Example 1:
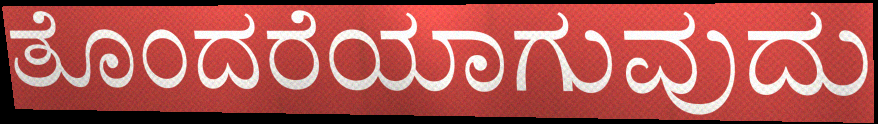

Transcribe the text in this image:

ತೊಂದರೆಯಾಗುವುದು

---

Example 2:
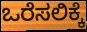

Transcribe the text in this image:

ಒರೆಸಲಿಕ್ಕೆ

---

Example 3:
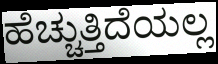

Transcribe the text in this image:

ಹೆಚ್ಚುತ್ತಿದೆಯಲ್ಲ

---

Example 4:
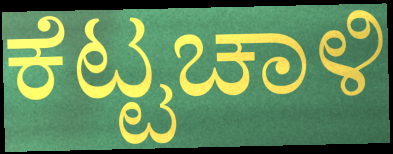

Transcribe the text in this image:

ಕೆಟ್ಟಚಾಳಿ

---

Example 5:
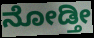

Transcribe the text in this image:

ನೋಡ್ತೀ